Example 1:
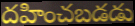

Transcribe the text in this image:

దహించబడడు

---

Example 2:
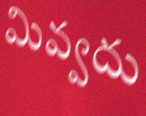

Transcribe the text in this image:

మివ్వదు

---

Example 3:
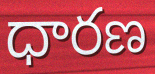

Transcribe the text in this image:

ధారణ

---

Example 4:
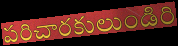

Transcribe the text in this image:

పరిచారకులుండిరి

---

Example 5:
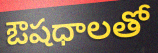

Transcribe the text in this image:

ఔషధాలతో